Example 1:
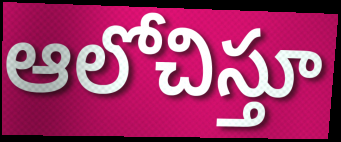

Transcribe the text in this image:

ఆలోచిస్తూ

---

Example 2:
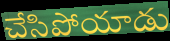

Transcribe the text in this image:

చేసిపోయాడు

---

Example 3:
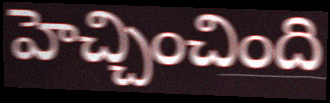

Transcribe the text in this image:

హెచ్చించింది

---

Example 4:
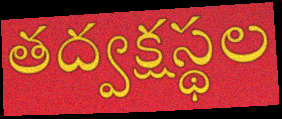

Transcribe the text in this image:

తద్వక్షస్థల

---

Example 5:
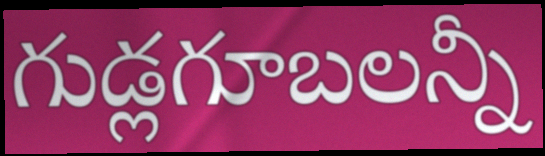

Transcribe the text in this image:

గుడ్లగూబలన్నీ